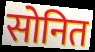
सोनित